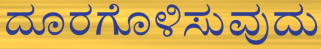
ದೂರಗೊಳಿಸುವುದು